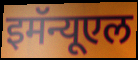
इमॅन्यूएल